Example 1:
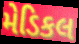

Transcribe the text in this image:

મેડિકલ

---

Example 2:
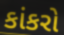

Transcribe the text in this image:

કાંકરો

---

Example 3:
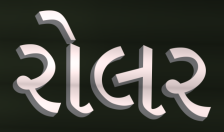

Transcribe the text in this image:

રોલર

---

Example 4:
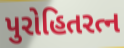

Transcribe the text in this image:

પુરોહિતરત્ન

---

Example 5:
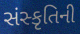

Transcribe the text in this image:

સંસ્કૃતિની